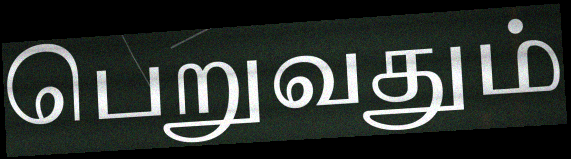
பெறுவதும்